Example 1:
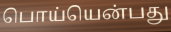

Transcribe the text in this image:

பொய்யென்பது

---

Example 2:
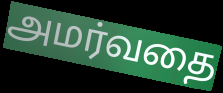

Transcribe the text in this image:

அமர்வதை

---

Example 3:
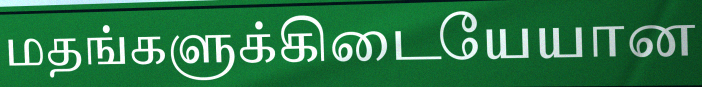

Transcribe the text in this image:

மதங்களுக்கிடையேயான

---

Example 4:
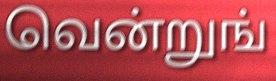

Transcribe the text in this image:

வென்றுங்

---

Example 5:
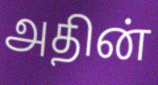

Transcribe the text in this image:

அதின்